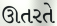
ઊતરતે